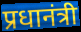
प्रधानंत्री